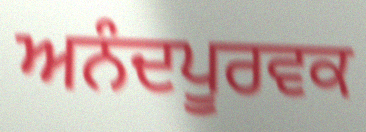
ਅਨੰਦਪੂਰਵਕ